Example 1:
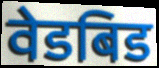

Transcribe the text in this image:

वेडबिड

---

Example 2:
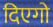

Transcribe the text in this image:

दिएगो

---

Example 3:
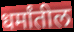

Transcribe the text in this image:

धर्मांतील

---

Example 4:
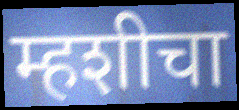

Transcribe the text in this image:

म्हशीचा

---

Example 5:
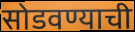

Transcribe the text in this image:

सोडवण्याची